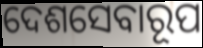
ଦେଶସେବାରୂପ